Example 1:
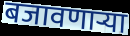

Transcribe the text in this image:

बजावणाऱ्या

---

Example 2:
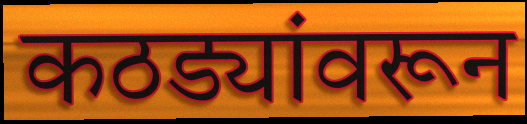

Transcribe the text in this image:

कठड्यांवरून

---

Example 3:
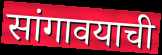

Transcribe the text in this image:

सांगावयाची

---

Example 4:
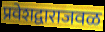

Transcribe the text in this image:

प्रवेशद्वाराजवळ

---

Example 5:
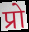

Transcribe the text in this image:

प्रो